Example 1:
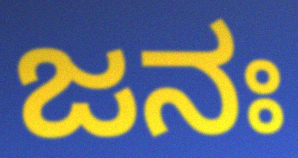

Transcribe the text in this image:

ಜನಃ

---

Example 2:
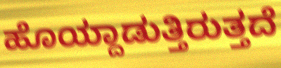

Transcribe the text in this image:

ಹೊಯ್ದಾಡುತ್ತಿರುತ್ತದೆ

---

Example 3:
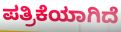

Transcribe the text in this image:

ಪತ್ರಿಕೆಯಾಗಿದೆ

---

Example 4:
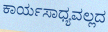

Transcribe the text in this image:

ಕಾರ್ಯಸಾಧ್ಯವಲ್ಲದ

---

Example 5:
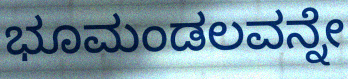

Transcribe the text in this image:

ಭೂಮಂಡಲವನ್ನೇ